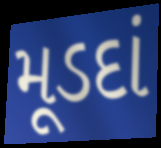
મૂડદાં